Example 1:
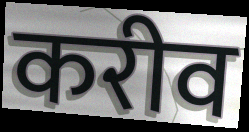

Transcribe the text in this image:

करीव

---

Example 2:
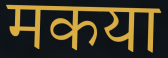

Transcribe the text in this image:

मकया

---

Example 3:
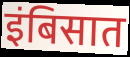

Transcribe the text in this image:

इंबिसात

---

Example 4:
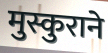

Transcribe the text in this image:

मुस्‍कुराने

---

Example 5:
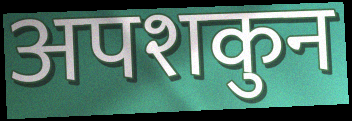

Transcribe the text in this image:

अपशकुन